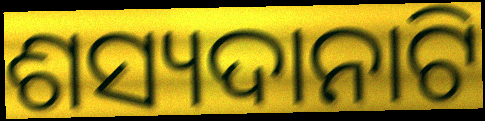
ଶସ୍ୟଦାନାଟି